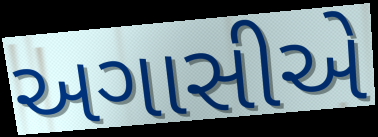
અગાસીએ